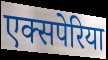
एक्सपेरिया